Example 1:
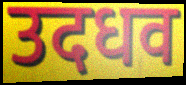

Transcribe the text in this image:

उदधव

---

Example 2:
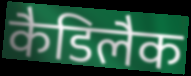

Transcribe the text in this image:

कैडिलैक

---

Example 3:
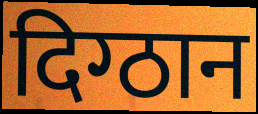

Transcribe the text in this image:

दिग्ठान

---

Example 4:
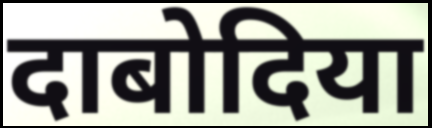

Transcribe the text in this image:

दाबोदिया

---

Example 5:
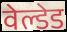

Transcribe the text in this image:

वेल्डेड